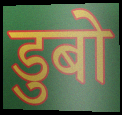
डुबो